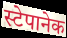
स्टेपानेक